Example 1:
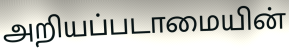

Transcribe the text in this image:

அறியப்படாமையின்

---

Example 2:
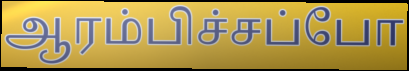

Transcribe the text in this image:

ஆரம்பிச்சப்போ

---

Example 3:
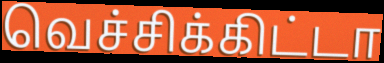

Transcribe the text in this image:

வெச்சிக்கிட்டா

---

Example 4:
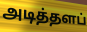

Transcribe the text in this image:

அடித்தளப்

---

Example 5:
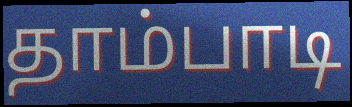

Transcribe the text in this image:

தாம்பாடி